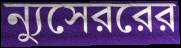
ন্যুসেররের